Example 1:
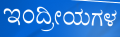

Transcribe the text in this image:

ಇಂದ್ರೀಯಗಳ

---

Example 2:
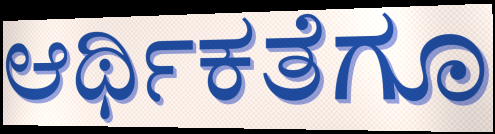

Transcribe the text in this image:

ಆರ್ಥಿಕತೆಗೂ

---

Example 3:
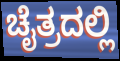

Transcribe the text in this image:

ಚೈತ್ರದಲ್ಲಿ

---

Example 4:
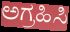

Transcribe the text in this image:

ಅಗ್ರಹಿಸಿ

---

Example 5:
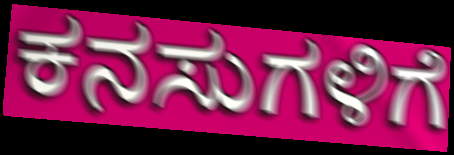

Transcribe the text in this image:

ಕನಸುಗಳಿಗೆ